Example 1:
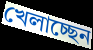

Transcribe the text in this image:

খেলাচ্ছেন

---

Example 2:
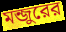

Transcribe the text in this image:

মন্জুরের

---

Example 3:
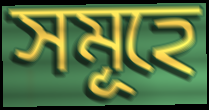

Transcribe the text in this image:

সমূহে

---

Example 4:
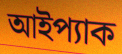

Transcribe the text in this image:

আইপ্যাক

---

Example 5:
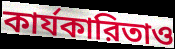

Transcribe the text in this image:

কার্যকারিতাও